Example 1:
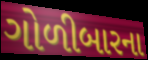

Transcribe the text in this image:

ગોળીબારના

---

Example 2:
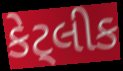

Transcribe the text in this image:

કેટ્લીક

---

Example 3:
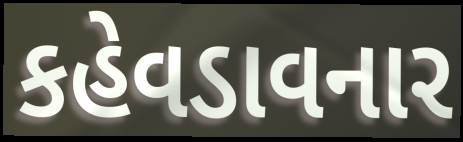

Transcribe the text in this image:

કહેવડાવનાર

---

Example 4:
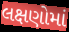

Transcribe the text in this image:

લક્ષણોમાં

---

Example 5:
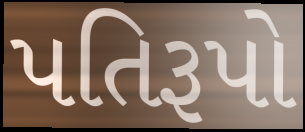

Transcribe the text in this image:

પતિરૂપો